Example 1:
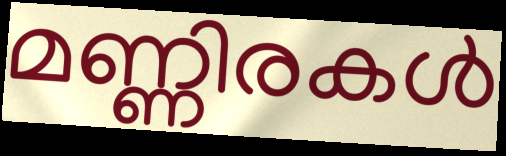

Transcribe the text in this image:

മണ്ണിരകൾ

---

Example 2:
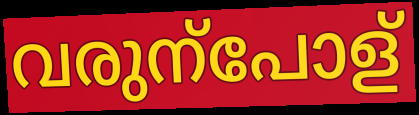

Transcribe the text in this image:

വരുന്പോള്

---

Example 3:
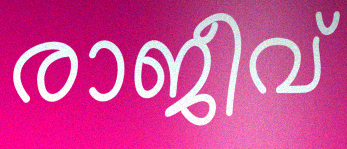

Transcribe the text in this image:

രാജീവ്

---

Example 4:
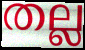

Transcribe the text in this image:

തല്ല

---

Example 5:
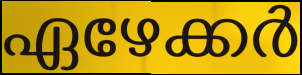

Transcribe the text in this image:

ഏഴേക്കർ